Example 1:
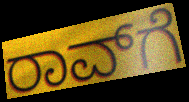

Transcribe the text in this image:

ರಾವ್‌ಗೆ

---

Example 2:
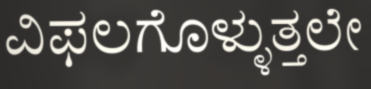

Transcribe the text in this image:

ವಿಫಲಗೊಳ್ಳುತ್ತಲೇ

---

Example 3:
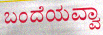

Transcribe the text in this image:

ಬಂದೆಯವ್ವಾ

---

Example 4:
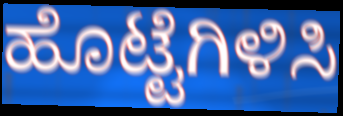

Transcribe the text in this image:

ಹೊಟ್ಟೆಗಿಳಿಸಿ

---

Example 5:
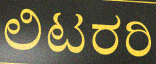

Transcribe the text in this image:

ಲಿಟರರಿ